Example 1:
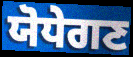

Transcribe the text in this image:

ਯੋਧੇਗਣ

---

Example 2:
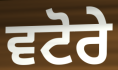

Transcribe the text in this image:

ਵਟੋਰੇ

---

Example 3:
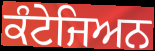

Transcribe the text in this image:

ਕੰਟੇਜਿਅਨ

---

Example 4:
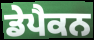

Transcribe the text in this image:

ਡੇਪੈਕਨ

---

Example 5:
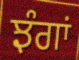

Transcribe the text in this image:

ਝੰਗਾਂ